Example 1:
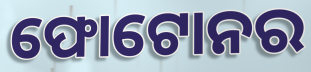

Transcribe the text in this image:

ଫୋଟୋନର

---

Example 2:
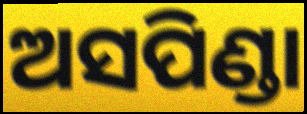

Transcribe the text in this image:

ଅସପିଣ୍ଡା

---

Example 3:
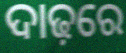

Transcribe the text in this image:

ଦାଢ଼ରେ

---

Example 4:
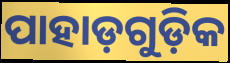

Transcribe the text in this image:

ପାହାଡ଼ଗୁଡ଼ିକ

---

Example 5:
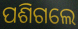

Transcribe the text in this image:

ପଶିଗଲେ